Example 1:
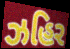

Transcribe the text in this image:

ઝહિર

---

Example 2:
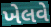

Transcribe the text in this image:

ખેલવે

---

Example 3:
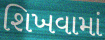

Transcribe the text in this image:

શિખવામાં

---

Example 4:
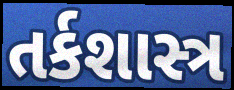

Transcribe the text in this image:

તર્કશાસ્ત્ર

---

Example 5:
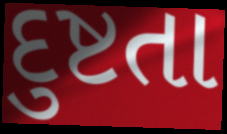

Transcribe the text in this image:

દુષ્ટતા